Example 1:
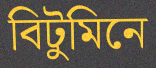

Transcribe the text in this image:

বিটুমিনে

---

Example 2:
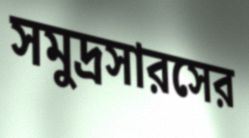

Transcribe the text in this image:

সমুদ্রসারসের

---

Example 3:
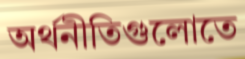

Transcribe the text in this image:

অর্থনীতিগুলোতে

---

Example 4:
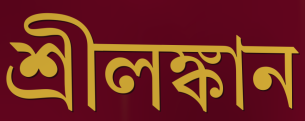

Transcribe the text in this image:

শ্রীলঙ্কান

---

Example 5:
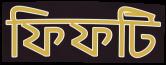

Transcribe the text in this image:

ফিফটি